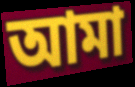
আমা